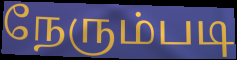
நேரும்படி